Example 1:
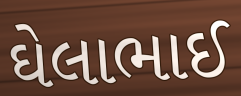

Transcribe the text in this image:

ઘેલાભાઈ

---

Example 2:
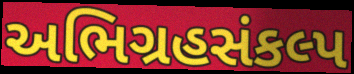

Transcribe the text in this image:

અભિગ્રહસંકલ્પ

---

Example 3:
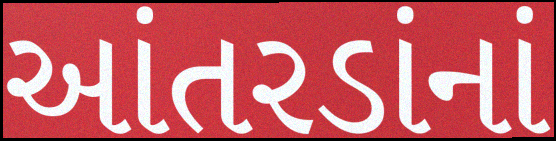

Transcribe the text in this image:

આંતરડાંનાં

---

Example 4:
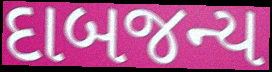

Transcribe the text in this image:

દાબજન્ય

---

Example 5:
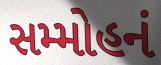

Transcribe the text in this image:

સમ્મોહનં